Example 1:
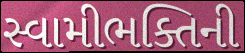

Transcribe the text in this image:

સ્વામીભક્તિની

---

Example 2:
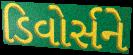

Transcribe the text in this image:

ડિવોર્સને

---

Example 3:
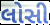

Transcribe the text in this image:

લોસી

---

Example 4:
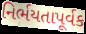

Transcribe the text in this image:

નિર્ભયતાપૂર્વક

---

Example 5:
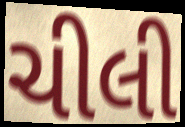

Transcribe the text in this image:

ચીલી